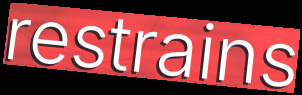
restrains